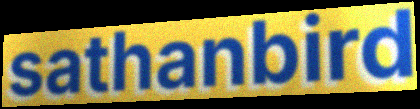
sathanbird